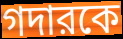
গদারকে